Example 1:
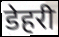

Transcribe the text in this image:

डेहरी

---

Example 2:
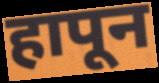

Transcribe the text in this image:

हापून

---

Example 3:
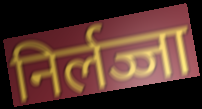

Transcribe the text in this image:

निर्लज्जा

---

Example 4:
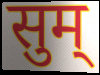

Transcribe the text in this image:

सुम्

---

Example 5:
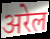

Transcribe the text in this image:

अरेल